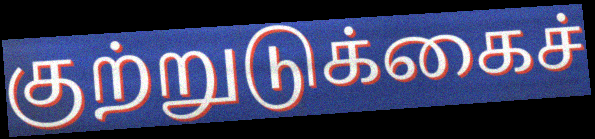
குற்றுடுக்கைச்